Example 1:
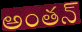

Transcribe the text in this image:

అంతన్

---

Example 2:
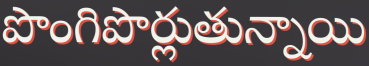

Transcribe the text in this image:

పొంగిపొర్లుతున్నాయి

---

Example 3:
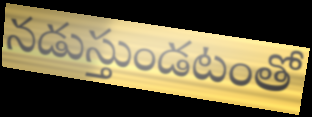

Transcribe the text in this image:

నడుస్తుండటంతో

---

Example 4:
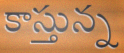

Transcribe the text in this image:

కాస్తున్న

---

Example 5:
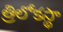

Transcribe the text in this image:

త్రిలోకస్థా